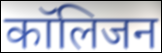
कॉलिजन